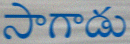
సాగాడు